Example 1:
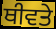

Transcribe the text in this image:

ਥੀਵਤੇ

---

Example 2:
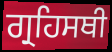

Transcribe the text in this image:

ਗ੍ਰਹਿਸਥੀ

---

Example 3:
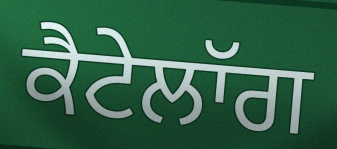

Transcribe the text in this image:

ਕੈਟੇਲਾੱਗ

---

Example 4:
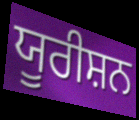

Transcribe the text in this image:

ਯੂਰੀਸ਼ਨ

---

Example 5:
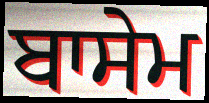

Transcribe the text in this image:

ਬਾਸੇਮ